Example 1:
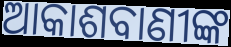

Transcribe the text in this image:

ଆକାଶବାଣୀଙ୍କ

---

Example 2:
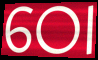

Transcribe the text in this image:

ଠୋ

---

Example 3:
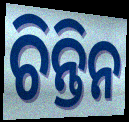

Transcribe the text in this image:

ଚିନ୍ତିନ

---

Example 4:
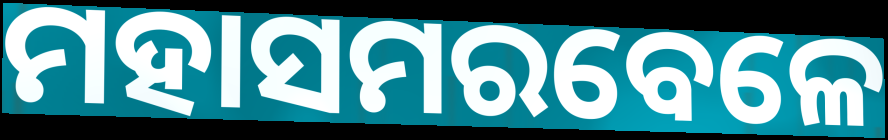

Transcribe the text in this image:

ମହାସମରବେଳେ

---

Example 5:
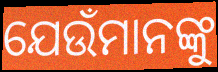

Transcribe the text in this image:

ଯେଉଁମାନଙ୍କୁ